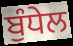
ਬੁੰਧੇਲ